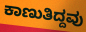
ಕಾಣುತಿದ್ದವು